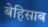
बेहिसाब